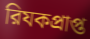
রিযকপ্রাপ্ত